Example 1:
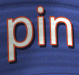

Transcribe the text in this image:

pin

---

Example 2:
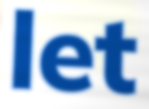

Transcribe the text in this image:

let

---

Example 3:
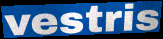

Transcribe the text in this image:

vestris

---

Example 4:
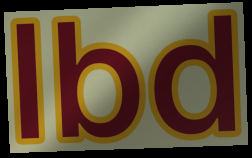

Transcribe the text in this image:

Ibd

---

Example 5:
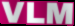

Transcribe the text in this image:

VLM